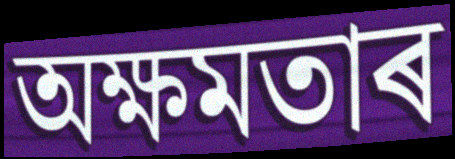
অক্ষমতাৰ